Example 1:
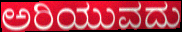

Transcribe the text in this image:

ಅರಿಯುವದು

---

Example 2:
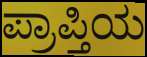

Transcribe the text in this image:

ಪ್ರಾಪ್ತಿಯ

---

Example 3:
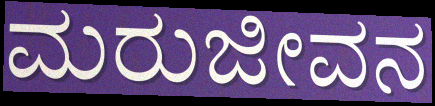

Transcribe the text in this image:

ಮರುಜೀವನ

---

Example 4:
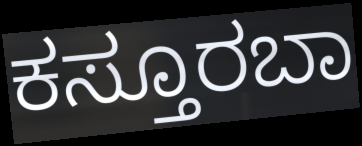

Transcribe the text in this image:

ಕಸ್ತೂರಬಾ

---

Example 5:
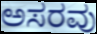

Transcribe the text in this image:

ಅಸರವು